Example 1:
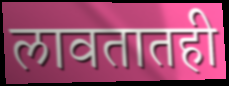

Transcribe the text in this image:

लावतातही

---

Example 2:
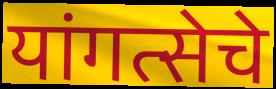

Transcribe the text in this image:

यांगत्सेचे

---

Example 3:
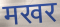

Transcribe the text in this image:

मखर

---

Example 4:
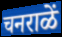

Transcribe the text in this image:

चनराळें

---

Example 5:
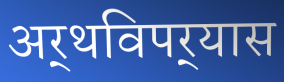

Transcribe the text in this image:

अर्थविपर्यास